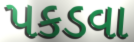
પકડવા